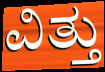
ವಿತ್ತು